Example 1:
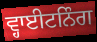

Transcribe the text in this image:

ਵ੍ਹਾਈਟਨਿੰਗ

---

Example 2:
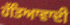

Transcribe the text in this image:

ਹੱਤਿਆਵਾਦੀ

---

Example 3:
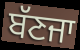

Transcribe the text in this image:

ਬੱਣਜਾ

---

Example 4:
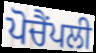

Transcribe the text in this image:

ਪੋਚੈਂਪਲੀ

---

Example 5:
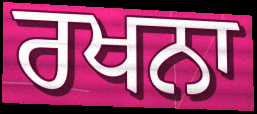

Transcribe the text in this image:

ਰਖਨਾ